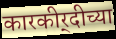
कारकीर्दीच्या